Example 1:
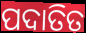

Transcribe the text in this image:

ପଦାତିତ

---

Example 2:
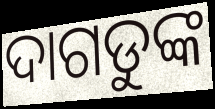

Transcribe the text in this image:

ଦାଗଡୁଙ୍କ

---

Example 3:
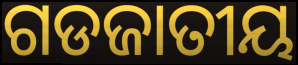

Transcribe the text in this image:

ଗଡଜାତୀୟ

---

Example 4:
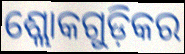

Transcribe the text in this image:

ଶ୍ଲୋକଗୁଡ଼ିକର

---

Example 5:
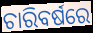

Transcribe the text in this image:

ଚାରିବର୍ଷରେ